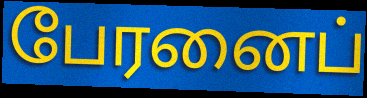
பேரனைப்